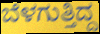
ಬೆಳಗುತ್ತಿದ್ದ